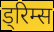
ड्रिम्स